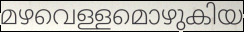
മഴവെള്ളമൊഴുകിയ